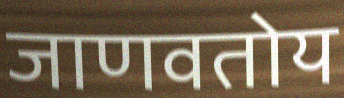
जाणवतोय